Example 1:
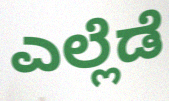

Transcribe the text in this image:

ಎಲ್ಲೆಡೆ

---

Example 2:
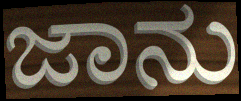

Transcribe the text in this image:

ಜಾನು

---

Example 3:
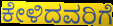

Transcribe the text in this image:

ಕೇಳಿದವರಿಗೆ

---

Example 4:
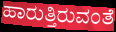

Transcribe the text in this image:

ಹಾರುತ್ತಿರುವಂತೆ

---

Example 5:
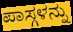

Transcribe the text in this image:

ಪಾಸ್ಗಳನ್ನು